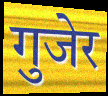
गुजेर